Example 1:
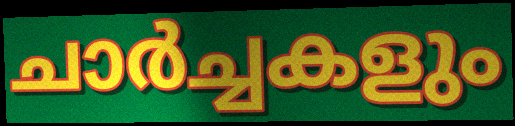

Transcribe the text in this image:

ചാർച്ചകളും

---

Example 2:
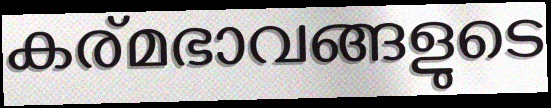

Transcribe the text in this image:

കര്മഭാവങ്ങളുടെ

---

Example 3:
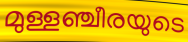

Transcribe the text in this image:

മുള്ളഞ്ചീരയുടെ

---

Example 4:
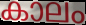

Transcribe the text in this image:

കാലം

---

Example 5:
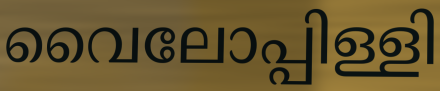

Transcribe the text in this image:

വൈലോപ്പിള്ളി